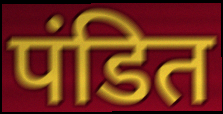
पंडित